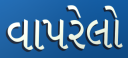
વાપરેલો